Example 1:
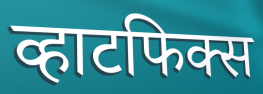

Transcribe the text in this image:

व्हाटफिक्स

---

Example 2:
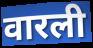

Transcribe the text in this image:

वारली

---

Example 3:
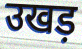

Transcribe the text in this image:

उखड़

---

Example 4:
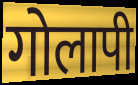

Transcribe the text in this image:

गोलापी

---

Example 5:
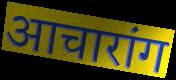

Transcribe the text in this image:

आचारांग